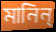
মানিন্